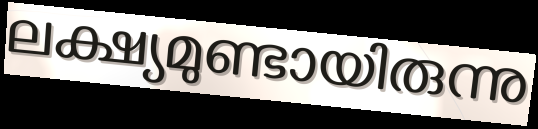
ലക്ഷ്യമുണ്ടായിരുന്നു